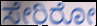
ಸೇರಿರೋ